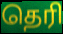
தெரி